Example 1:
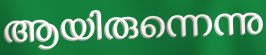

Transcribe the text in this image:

ആയിരുന്നെന്നു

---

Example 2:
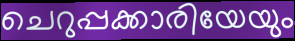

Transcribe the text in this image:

ചെറുപ്പക്കാരിയേയും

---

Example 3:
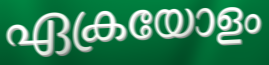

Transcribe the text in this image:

ഏക്രയോളം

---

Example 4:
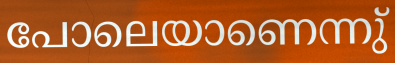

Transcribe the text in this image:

പോലെയാണെന്നു്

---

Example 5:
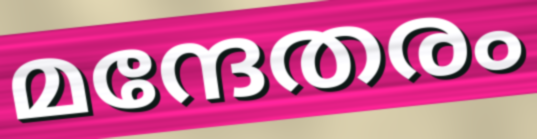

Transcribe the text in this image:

മന്ദേതരം